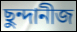
ছুন্দানীজ